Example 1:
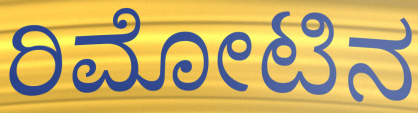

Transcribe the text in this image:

ರಿಮೋಟಿನ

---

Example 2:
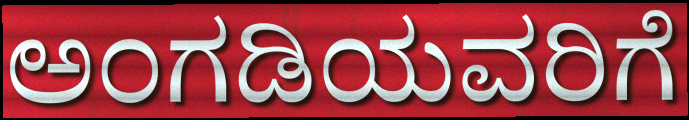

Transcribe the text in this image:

ಅಂಗಡಿಯವರಿಗೆ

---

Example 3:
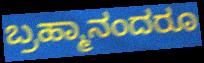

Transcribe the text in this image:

ಬ್ರಹ್ಮಾನಂದರೂ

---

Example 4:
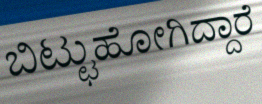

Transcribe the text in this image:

ಬಿಟ್ಟುಹೋಗಿದ್ದಾರೆ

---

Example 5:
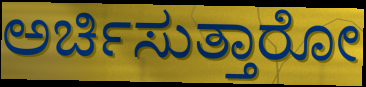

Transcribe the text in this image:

ಅರ್ಚಿಸುತ್ತಾರೋ